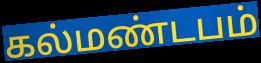
கல்மண்டபம்